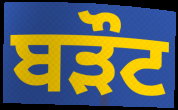
ਬੜੌਟ